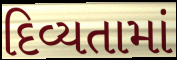
દિવ્યતામાં